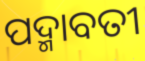
ପଦ୍ମାବତୀ